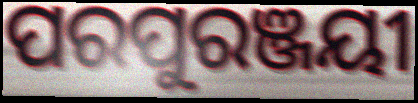
ପରପୁରଞ୍ଜୟୀ